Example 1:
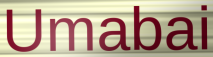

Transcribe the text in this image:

Umabai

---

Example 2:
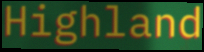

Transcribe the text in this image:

Highland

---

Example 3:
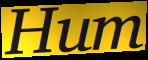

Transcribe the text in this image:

Hum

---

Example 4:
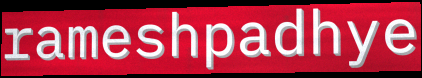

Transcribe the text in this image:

rameshpadhye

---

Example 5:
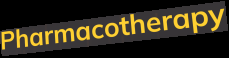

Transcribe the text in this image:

Pharmacotherapy